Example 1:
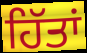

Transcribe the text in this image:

ਹਿੱਤਾਂ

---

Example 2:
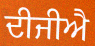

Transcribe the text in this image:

ਦੀਜੀਐ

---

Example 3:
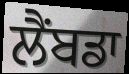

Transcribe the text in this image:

ਲੈਂਬਡਾ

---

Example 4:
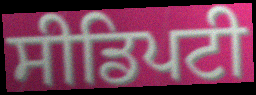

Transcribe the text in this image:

ਸੀਡਿਪਟੀ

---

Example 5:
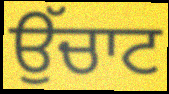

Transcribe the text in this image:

ਉੱਚਾਟ